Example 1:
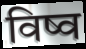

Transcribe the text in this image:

विष्व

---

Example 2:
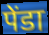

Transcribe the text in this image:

पेंडा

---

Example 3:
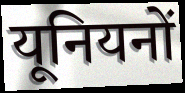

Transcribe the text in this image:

यूनियनों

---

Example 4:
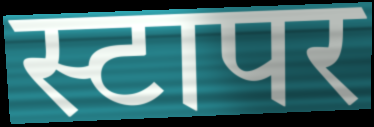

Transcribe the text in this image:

स्टापर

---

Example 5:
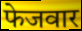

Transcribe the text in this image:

फेजवार